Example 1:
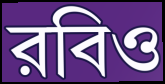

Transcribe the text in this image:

রবিও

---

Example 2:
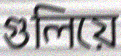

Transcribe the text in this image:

গুলিয়ে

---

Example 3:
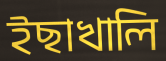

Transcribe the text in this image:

ইছাখালি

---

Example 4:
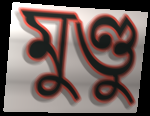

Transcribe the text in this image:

মুণ্ডু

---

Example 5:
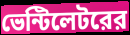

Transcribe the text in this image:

ভেন্টিলেটরের